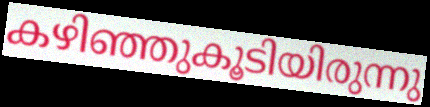
കഴിഞ്ഞുകൂടിയിരുന്നു